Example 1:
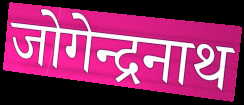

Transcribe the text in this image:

जोगेन्द्रनाथ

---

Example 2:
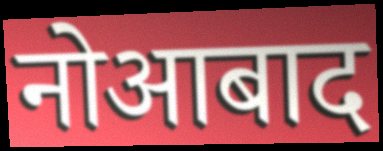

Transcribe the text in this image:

नोआबाद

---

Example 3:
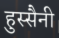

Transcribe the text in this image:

हुस्सैनी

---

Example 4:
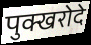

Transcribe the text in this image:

पुक्खरोदे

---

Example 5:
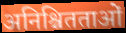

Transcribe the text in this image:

अनिश्चितताओं